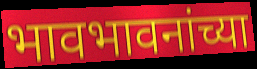
भावभावनांच्या